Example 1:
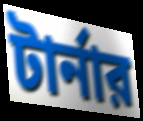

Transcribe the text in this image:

টার্নার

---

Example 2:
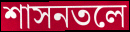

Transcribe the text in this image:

শাসনতলে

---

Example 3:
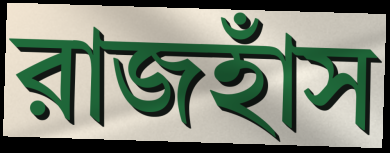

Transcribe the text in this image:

রাজহাঁস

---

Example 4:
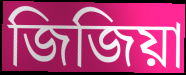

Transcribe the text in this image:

জিজিয়া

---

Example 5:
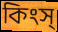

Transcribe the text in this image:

কিংস্